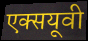
एक्सयूवी